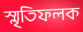
স্মৃতিফলক